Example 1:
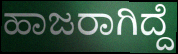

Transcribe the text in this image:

ಹಾಜರಾಗಿದ್ದೆ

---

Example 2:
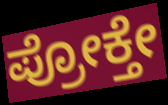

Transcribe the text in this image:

ಪ್ರೋಕ್ತೇ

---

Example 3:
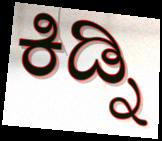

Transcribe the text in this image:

ಕಿಡ್ನಿ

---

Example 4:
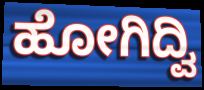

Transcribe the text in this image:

ಹೋಗಿದ್ವಿ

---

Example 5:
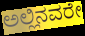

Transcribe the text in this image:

ಅಲ್ಲಿನವರೇ